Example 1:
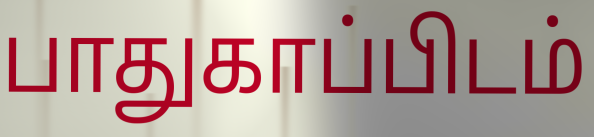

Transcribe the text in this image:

பாதுகாப்பிடம்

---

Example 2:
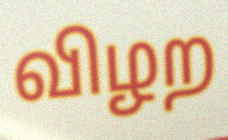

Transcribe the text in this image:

விழற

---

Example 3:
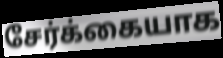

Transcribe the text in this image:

சேர்க்கையாக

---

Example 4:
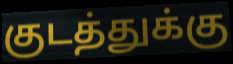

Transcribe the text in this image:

குடத்துக்கு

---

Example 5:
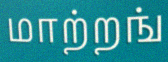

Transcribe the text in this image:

மாற்றங்